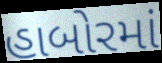
હાબોરમાં